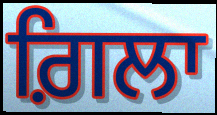
ਗ਼ਿਲਾ